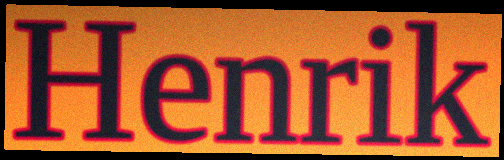
Henrik